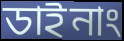
ডাইনাং